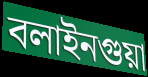
বলাইনগুয়া